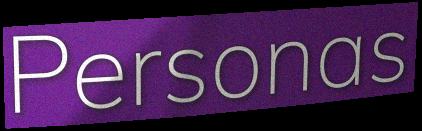
Personas